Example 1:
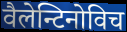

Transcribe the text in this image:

वैलेन्टिनोविच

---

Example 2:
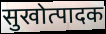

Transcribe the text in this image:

सुखोत्पादक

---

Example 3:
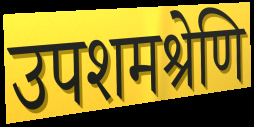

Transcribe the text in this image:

उपशमश्रेणि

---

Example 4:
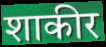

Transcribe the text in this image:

शाकीर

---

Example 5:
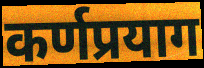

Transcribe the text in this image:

कर्णप्रयाग